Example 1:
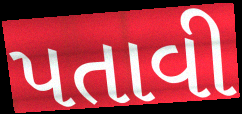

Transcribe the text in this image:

પતાવી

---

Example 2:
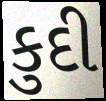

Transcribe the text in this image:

કુદી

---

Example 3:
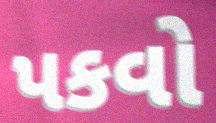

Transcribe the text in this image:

પકવો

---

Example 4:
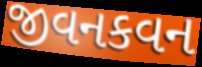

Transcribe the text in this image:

જીવનકવન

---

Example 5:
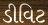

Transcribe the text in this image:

ડીવિટ